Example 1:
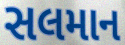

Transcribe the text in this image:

સલમાન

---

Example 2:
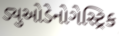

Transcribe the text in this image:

ડ્યુઓડેનોગેસ્ટ્રિક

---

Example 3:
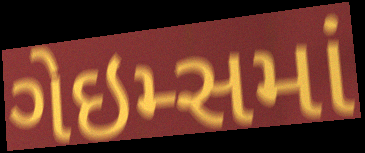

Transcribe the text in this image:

ગેઇમ્સમાં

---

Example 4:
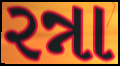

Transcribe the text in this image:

રન્ના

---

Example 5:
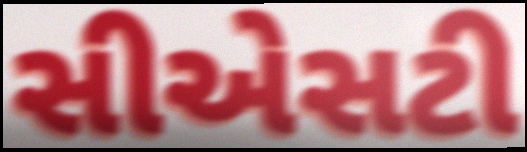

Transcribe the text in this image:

સીએસટી